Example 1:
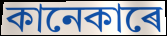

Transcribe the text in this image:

কানেকাৰে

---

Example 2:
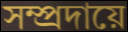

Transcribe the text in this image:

সম্প্ৰদায়ে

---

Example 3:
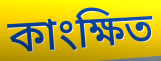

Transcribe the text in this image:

কাংক্ষিত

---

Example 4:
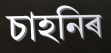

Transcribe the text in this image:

চাহনিৰ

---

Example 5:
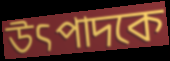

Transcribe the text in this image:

উৎপাদকে